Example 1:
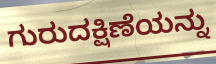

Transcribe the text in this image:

ಗುರುದಕ್ಷಿಣೆಯನ್ನು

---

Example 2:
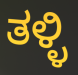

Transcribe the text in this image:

ತಳ್ಳಿ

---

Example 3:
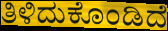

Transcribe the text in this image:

ತಿಳಿದುಕೊಂಡಿದೆ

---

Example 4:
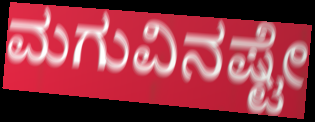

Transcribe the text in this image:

ಮಗುವಿನಷ್ಟೇ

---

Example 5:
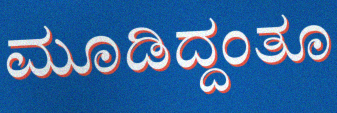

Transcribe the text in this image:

ಮೂಡಿದ್ದಂತೂ